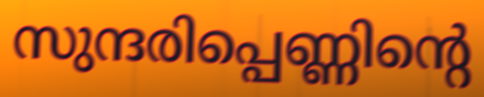
സുന്ദരിപ്പെണ്ണിന്റെ